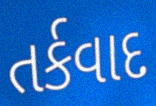
તર્કવાદ